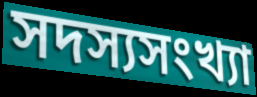
সদস্যসংখ্যা